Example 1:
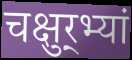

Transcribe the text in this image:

चक्षुर्भ्यां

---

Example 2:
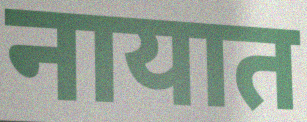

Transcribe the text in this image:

नायात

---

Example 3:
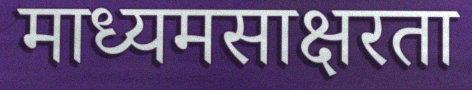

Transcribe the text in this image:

माध्यमसाक्षरता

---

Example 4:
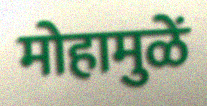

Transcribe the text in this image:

मोहामुळें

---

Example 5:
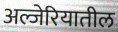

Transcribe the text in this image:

अल्जेरियातील